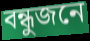
বন্ধুজনে